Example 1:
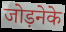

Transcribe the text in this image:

जोड़नेके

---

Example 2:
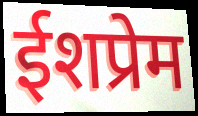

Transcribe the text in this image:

ईशप्रेम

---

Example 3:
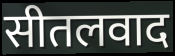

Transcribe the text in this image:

सीतलवाद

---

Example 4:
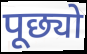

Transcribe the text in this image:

पूछ्यो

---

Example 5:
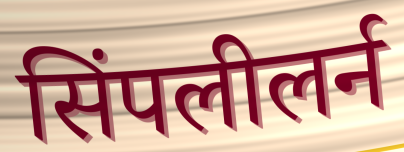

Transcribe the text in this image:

सिंपलीलर्न